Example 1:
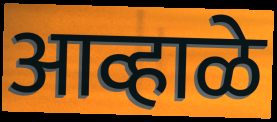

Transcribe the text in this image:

आव्हाळे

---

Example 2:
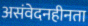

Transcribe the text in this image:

असंवेदनहीनता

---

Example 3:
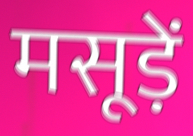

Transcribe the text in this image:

मसूड़ें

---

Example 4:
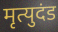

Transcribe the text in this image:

मृत्युदंड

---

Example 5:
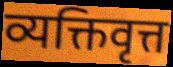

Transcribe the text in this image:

व्यक्तिवृत्त